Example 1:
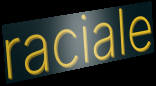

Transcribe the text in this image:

raciale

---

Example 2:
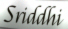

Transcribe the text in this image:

Sriddhi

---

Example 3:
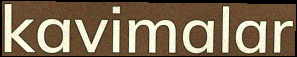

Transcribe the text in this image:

kavimalar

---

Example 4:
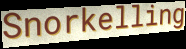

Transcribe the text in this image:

Snorkelling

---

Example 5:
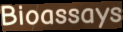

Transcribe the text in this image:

Bioassays